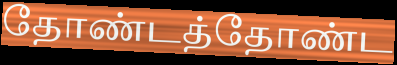
தோண்டத்தோண்ட